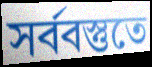
সর্ববস্তুতে